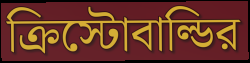
ক্রিস্টোবাল্ডির